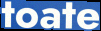
toate